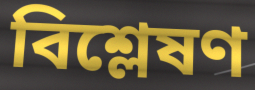
বিশ্লেষণ